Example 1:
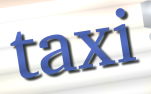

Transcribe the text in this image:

taxi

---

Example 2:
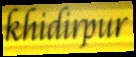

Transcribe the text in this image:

khidirpur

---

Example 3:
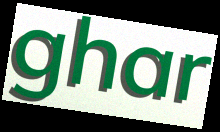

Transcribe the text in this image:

ghar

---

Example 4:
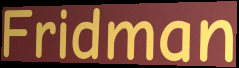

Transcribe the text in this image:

Fridman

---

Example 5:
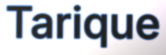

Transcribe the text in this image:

Tarique